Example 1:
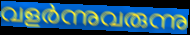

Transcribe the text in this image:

വളർന്നുവരുന്നു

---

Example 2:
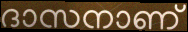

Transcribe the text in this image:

ദാസനാണ്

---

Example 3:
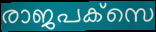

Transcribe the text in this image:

രാജപക്‌സെ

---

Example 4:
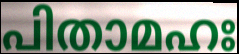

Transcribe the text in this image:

പിതാമഹഃ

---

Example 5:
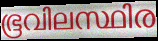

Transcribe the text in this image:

ഭൂവിലസ്ഥിര